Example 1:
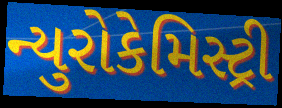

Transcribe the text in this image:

ન્યુરોકેમિસ્ટ્રી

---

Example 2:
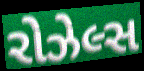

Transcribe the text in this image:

રોઝેલ્સ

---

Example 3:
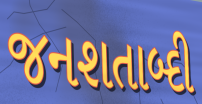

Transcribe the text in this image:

જનશતાબ્દી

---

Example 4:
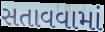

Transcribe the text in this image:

સતાવવામાં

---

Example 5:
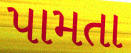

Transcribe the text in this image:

પામતા